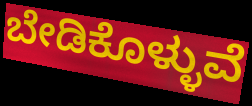
ಬೇಡಿಕೊಳ್ಳುವೆ